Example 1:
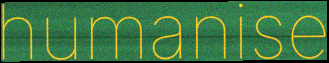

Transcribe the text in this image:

humanise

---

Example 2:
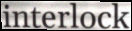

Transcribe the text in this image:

interlock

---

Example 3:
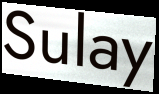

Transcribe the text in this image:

Sulay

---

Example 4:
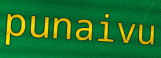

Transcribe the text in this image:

punaivu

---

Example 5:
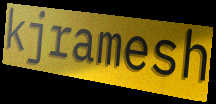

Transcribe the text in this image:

kjramesh